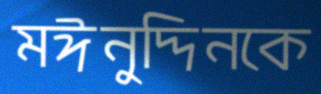
মঈনুদ্দিনকে